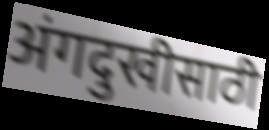
अंगदुखीसाठी